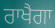
ਰਾਖੈਗਾ